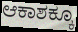
ಆಕಾಶಕ್ಕೂ